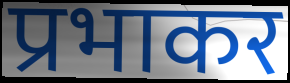
प्रभाकर